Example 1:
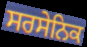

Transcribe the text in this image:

ਸਰਸੇਨਿਕ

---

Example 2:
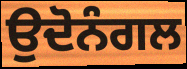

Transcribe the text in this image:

ਉਦੋਨੰਗਲ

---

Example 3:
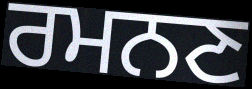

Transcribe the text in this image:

ਰਮਨਣ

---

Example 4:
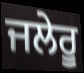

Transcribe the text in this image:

ਜਲੇਰੂ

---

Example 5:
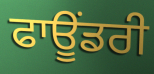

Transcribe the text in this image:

ਫਾਊਂਡਰੀ